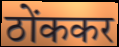
ठोंककर